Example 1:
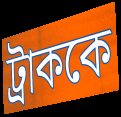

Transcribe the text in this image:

ট্রাককে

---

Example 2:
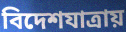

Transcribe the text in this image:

বিদেশযাত্রায়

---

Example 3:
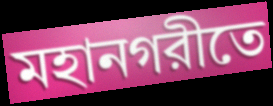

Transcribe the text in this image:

মহানগরীতে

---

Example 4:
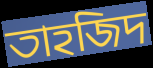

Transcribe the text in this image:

তাহজিদ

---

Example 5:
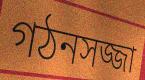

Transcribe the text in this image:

গঠনসজ্জা